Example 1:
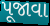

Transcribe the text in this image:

પૂજાવા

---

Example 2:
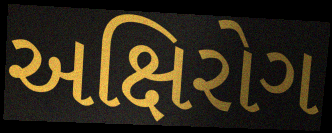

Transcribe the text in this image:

અક્ષિરોગ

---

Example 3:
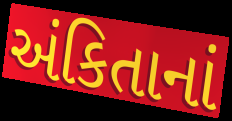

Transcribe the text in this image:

અંકિતાનાં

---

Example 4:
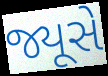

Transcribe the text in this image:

જ્યૂસે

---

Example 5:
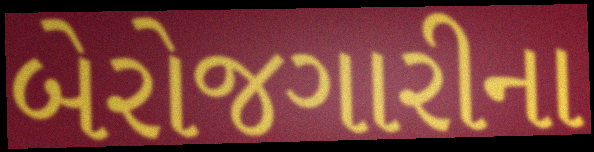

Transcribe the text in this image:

બેરોજગારીના